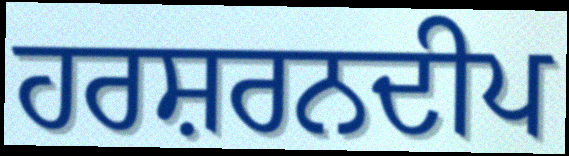
ਹਰਸ਼ਰਨਦੀਪ